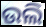
ଉଲି